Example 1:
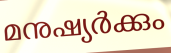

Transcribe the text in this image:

മനുഷ്യർക്കും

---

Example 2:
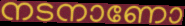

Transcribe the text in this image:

നടനാണോ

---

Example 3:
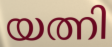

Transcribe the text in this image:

യത്നി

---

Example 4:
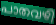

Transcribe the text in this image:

പാതവഴി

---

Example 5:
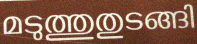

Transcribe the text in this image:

മടുത്തുതുടങ്ങി